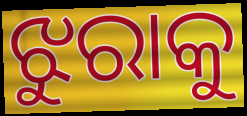
ଝୁରାକୁ